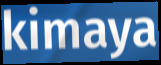
kimaya